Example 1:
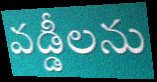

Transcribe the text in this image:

వడ్డీలను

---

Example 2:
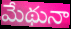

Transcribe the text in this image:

మేథునా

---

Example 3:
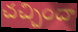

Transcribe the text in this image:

చచ్చిందా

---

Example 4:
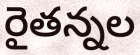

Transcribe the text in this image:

రైతన్నల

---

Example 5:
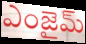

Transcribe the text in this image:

ఎంజైమ్